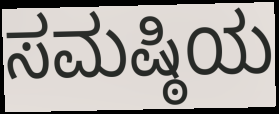
ಸಮಷ್ಠಿಯ